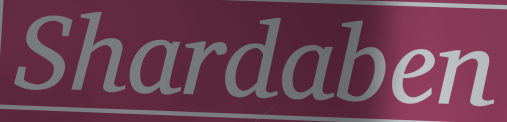
Shardaben